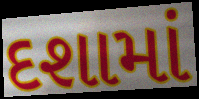
દશામાં